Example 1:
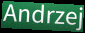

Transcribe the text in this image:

Andrzej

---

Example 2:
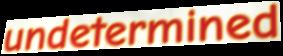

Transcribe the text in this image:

undetermined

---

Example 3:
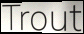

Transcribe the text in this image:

Trout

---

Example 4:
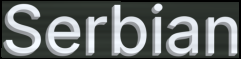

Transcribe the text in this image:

Serbian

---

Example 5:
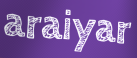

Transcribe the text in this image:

araiyar